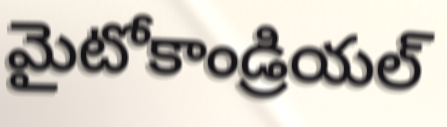
మైటోకాండ్రియల్